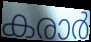
കരാർ